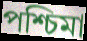
পশ্চিমা